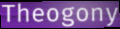
Theogony